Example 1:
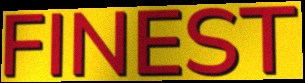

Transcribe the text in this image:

FINEST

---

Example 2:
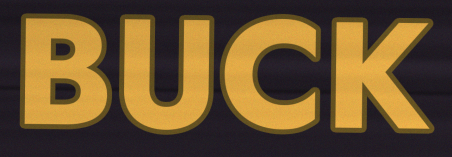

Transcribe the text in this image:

BUCK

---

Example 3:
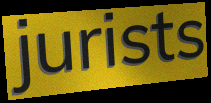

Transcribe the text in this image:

jurists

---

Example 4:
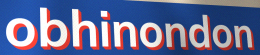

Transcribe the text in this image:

obhinondon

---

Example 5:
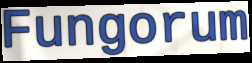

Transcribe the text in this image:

Fungorum